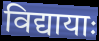
विद्यायाः